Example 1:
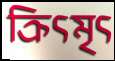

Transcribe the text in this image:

ক্রিৎমৃৎ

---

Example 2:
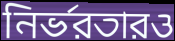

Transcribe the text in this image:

নির্ভরতারও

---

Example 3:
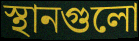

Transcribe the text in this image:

স্থানগুলো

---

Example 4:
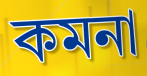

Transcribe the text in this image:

কমনা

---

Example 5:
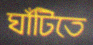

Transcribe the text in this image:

ঘাঁটিতে